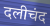
दलीचंद